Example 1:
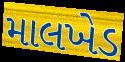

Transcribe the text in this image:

માલખેડ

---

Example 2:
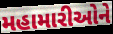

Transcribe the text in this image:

મહામારીઓને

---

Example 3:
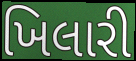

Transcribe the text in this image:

ખિલારી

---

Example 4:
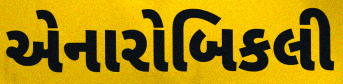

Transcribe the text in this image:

એનારોબિકલી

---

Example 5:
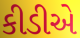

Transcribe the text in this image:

કીડીએ